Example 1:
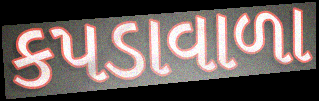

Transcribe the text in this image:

કપડાવાળા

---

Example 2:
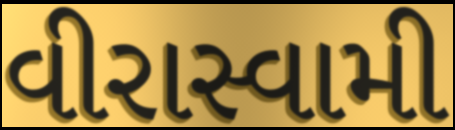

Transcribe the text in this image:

વીરાસ્વામી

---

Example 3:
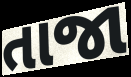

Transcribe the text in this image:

તાજા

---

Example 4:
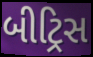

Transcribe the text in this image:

બીટ્રિસ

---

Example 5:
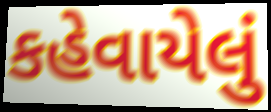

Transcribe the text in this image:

કહેવાયેલું